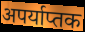
अपर्याप्तक